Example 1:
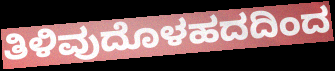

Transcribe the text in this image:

ತಿಳಿವುದೊಳಹದದಿಂದ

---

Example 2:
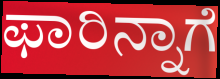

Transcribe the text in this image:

ಫಾರಿನ್ನಾಗೆ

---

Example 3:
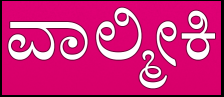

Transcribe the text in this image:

ವಾಲ್ಮೀಕಿ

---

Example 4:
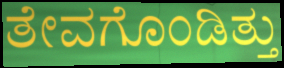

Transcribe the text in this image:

ತೇವಗೊಂಡಿತ್ತು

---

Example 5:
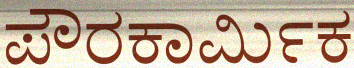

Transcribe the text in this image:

ಪೌರಕಾರ್ಮಿಕ